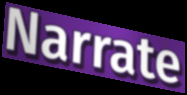
Narrate